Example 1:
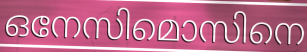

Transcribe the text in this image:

ഒനേസിമൊസിനെ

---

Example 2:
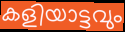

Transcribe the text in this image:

കളിയാട്ടവും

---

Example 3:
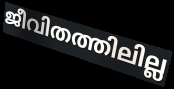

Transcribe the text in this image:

ജീവിതത്തിലില്ല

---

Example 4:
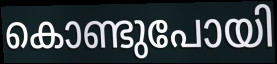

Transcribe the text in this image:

കൊണ്ടുപോയി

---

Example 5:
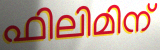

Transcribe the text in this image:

ഫിലിമിന്